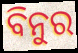
ବିନୁର